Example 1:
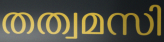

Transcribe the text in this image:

തത്വമസി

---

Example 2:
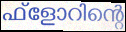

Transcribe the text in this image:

ഫ്ളോറിന്റെ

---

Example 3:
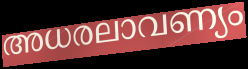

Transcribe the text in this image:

അധരലാവണ്യം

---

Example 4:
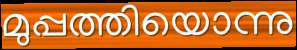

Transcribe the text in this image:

മുപ്പത്തിയൊന്നു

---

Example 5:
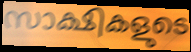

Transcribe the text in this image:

സാക്ഷികളുടെ